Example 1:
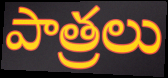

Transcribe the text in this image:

పాత్రలు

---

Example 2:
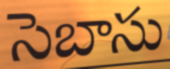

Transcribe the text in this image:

సెబాసు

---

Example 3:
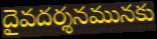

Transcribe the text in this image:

దైవదర్శనమునకు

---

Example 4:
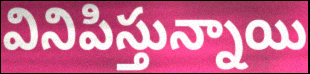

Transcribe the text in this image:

వినిపిస్తున్నాయి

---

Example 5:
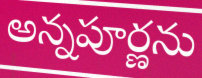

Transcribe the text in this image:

అన్నపూర్ణను